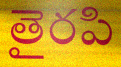
తైరపి